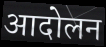
आदोलन